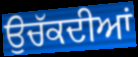
ਉਚੱਕਦੀਆਂ